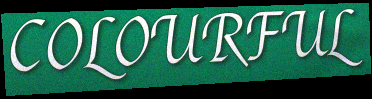
COLOURFUL